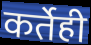
कर्तेही